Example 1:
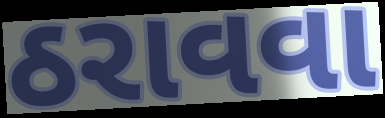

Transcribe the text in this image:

ઠરાવવા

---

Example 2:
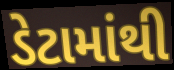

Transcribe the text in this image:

ડેટામાંથી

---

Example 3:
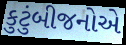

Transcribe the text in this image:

કુટુંબીજનોએ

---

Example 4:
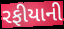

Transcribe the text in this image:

રફીયાની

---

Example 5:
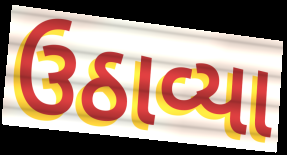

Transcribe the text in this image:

ઉઠાવ્યા